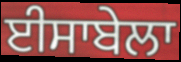
ਈਸਾਬੇਲਾ